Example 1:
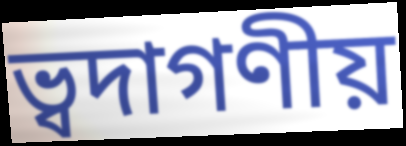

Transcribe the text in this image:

ভ্বদাগণীয়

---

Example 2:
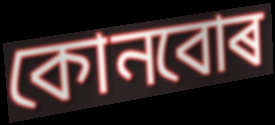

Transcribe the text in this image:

কোনবোৰ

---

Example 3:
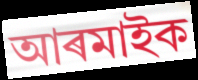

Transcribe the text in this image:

আৰমাইক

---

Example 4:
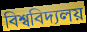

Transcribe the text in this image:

বিশ্ববিদ্যলয়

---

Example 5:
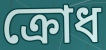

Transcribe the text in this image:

ক্ৰোধ